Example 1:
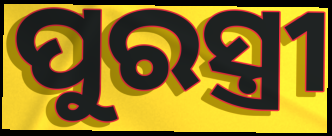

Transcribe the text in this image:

ପୁରସ୍ତ୍ରୀ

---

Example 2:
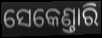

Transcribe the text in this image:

ସେକେଣ୍ତାରି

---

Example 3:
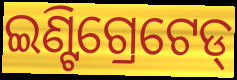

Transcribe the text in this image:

ଇଣ୍ଟିଗ୍ରେଟେଡ୍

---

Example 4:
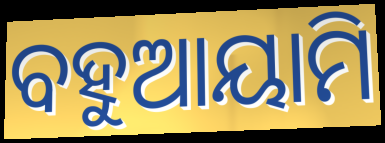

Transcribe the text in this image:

ବହୁଆୟାମି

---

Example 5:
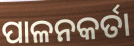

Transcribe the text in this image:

ପାଳନକର୍ତା